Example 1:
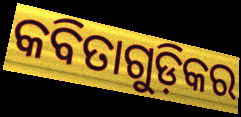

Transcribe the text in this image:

କବିତାଗୁଡ଼ିକର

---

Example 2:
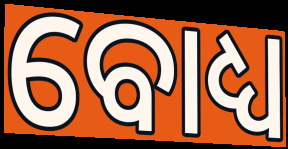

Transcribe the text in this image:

ବୋଧ୍ୟ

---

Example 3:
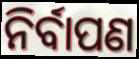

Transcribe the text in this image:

ନିର୍ବାପଣ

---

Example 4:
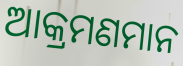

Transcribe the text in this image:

ଆକ୍ରମଣମାନ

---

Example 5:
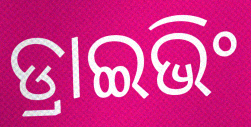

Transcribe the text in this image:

ଡ୍ରାଇଭିଂ